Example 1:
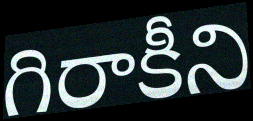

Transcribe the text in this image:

గిరాకీని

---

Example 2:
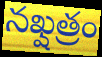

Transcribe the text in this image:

నఖ్షత్రం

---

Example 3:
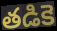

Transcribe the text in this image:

తడికె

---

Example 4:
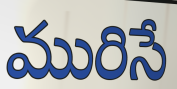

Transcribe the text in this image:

మురిసే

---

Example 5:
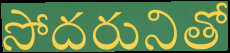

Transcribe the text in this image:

సోదరునితో